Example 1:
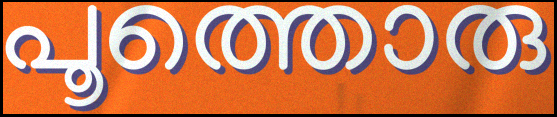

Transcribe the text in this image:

പൂത്തൊരു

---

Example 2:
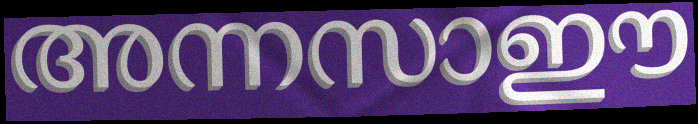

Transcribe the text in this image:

അന്നസാഈ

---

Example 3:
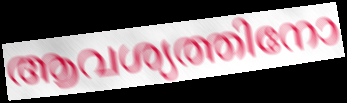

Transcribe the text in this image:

ആവശ്യത്തിനോ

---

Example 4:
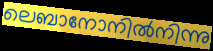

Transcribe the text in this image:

ലെബാനോനിൽനിന്നു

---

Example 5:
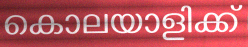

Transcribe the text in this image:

കൊലയാളിക്ക്